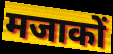
मजाकों